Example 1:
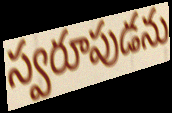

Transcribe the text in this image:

స్వరూపుడను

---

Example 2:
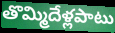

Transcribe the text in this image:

తొమ్మిదేళ్లపాటు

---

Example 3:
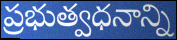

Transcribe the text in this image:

ప్రభుత్వధనాన్ని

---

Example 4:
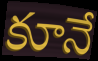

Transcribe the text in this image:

కూనే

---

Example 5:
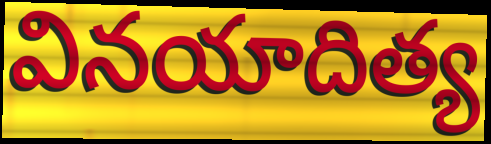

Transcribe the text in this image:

వినయాదిత్య